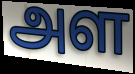
அள